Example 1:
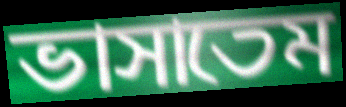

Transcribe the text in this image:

ভাসাতেম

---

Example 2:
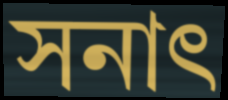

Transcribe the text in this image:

সনাৎ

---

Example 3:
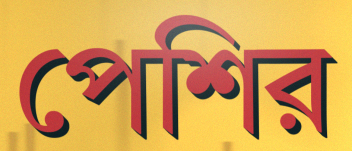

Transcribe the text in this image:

পেশির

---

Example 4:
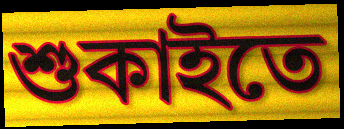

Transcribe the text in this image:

শুকাইতে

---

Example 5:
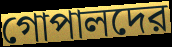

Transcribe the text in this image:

গোপালদের